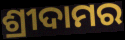
ଶ୍ରୀଦାମର